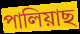
পালিয়াছ